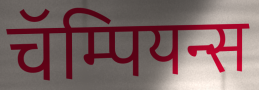
चॅम्पियन्स